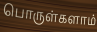
பொருள்களாம்